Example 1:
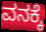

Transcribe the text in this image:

ವನಕ್ಕೆ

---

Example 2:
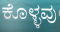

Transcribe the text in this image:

ಕೊಳ್ಳವು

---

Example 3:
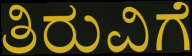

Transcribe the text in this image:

ತಿರುವಿಗೆ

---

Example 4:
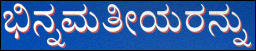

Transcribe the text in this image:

ಭಿನ್ನಮತೀಯರನ್ನು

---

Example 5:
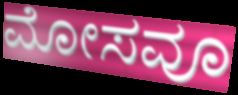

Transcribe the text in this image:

ಮೋಸವೂ